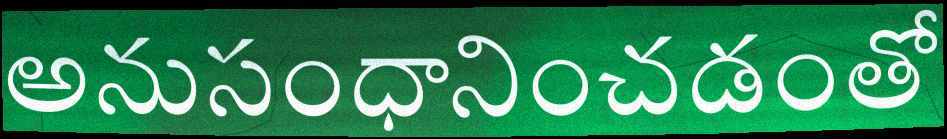
అనుసంధానించడంతో